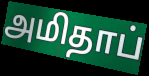
அமிதாப்